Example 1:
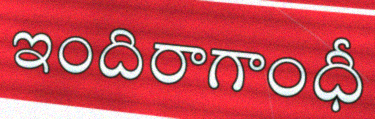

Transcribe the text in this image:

ఇందిరాగాంధీ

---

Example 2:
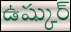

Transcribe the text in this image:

ఉష్కుర్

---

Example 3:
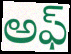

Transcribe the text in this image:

అఫ్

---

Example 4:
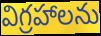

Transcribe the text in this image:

విగ్రహాలను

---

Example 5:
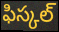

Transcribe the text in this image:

ఫిస్కల్